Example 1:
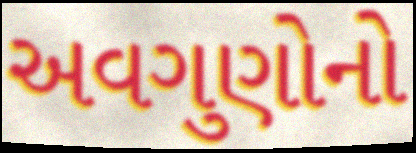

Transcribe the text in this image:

અવગુણોનો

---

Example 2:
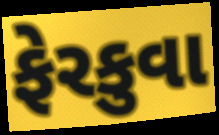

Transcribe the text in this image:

ફેરકુવા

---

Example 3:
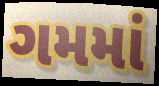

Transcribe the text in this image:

ગમમાં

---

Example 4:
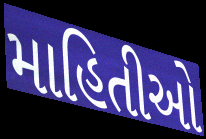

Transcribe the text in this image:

માહિતીઓ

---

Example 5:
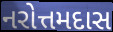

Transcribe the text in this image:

નરોત્તમદાસ